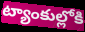
ట్యాంకుల్లోకి